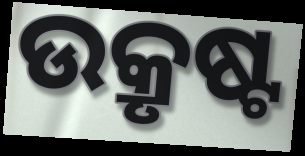
ଉକ୍ରୃଷ୍ଟ